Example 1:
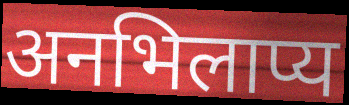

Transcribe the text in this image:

अनभिलाप्य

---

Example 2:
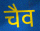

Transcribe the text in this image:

चैव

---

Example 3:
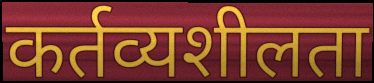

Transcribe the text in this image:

कर्तव्यशीलता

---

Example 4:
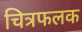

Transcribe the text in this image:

चित्रफलक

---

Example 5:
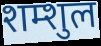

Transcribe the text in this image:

शम्शुल